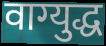
वाग्युद्ध